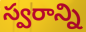
స్వరాన్ని